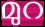
മുറ